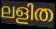
ലളിത